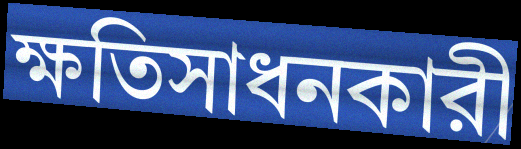
ক্ষতিসাধনকারী